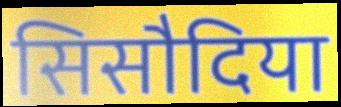
सिसौदिया